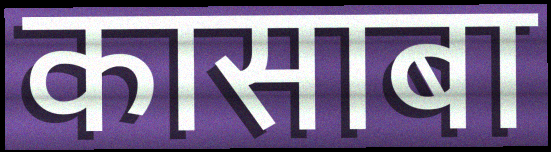
कासाबा